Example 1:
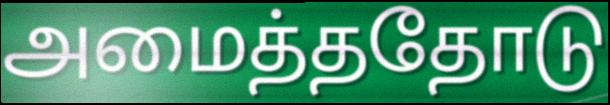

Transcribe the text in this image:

அமைத்ததோடு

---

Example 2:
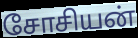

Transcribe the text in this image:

சோசியன்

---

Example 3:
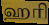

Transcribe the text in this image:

ஹரி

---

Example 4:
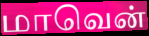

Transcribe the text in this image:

மாவென்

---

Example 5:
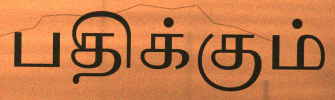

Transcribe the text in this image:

பதிக்கும்